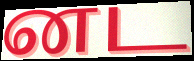
னட